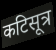
कटिसूत्र